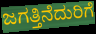
ಜಗತ್ತಿನೆದುರಿಗೆ